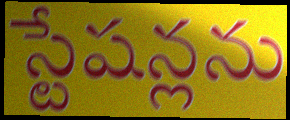
స్టేషన్లను